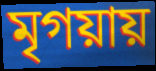
মৃগয়ায়